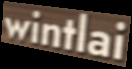
wintlai